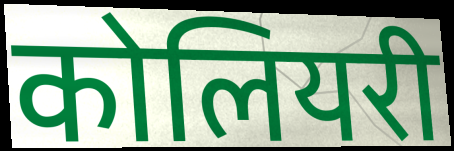
कोलियरी